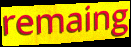
remaing